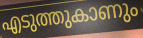
എടുത്തുകാണും